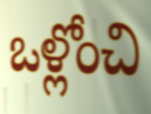
ఒళ్లోంచి